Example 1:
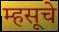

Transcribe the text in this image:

म्हसूचे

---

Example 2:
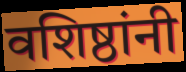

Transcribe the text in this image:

वशिष्ठांनी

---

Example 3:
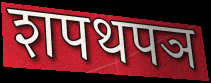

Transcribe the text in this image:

शपथपञ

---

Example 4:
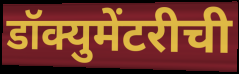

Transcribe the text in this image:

डॉक्युमेंटरीची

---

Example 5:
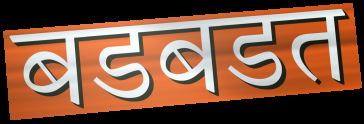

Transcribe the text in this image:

बडबडत